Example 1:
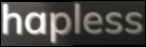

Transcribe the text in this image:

hapless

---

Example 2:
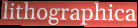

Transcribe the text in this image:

lithographica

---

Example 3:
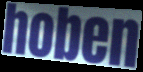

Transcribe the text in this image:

hoben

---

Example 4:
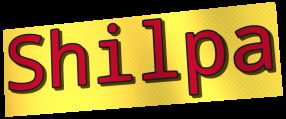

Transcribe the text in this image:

Shilpa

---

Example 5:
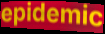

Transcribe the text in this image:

epidemic